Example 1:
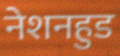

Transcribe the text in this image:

नेशनहुड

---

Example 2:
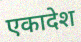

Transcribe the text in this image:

एकादेश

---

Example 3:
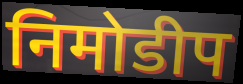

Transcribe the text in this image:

निमोडीप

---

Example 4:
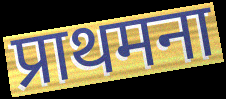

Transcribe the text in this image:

प्राथमना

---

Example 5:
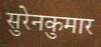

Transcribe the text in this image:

सुरेनकुमार